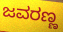
ಜವರಣ್ಣ